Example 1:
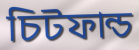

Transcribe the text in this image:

চিটফান্ড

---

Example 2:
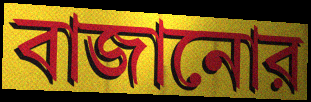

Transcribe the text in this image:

বাজানোর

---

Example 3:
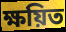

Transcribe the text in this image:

ক্ষয়িত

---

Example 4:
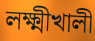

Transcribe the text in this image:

লক্ষ্মীখালী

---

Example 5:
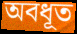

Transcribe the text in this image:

অবধূত